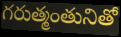
గరుత్మంతునితో